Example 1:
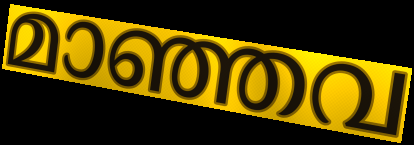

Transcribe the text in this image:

മാഞ്ഞവ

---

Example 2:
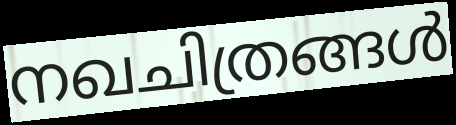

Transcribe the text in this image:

നഖചിത്രങ്ങൾ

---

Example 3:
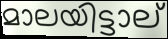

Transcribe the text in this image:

മാലയിട്ടാല്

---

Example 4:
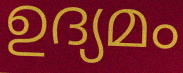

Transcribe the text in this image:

ഉദ്യമം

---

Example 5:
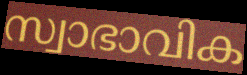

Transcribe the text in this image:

സ്വാഭാവിക